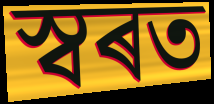
স্বৰত